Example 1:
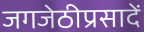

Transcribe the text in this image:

जगजेठीप्रसादें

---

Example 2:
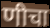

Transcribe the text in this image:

णीचा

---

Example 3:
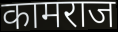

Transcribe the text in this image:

कामराज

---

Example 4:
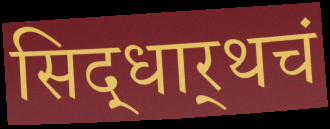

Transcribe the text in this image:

सिद्धार्थचं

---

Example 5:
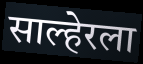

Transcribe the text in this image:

साल्हेरला